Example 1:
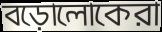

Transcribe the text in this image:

বড়োলোকেরা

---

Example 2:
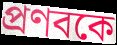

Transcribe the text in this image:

প্রণবকে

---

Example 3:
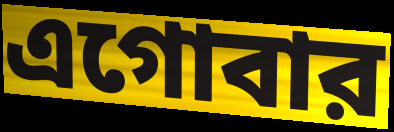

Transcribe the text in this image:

এগোবার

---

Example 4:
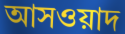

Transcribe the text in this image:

আসওয়াদ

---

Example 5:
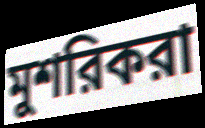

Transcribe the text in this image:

মুশরিকরা